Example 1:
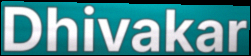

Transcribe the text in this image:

Dhivakar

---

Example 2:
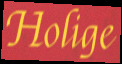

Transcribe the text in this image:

Holige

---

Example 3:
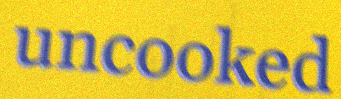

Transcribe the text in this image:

uncooked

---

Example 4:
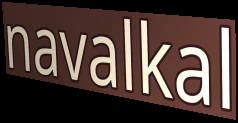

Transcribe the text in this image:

navalkal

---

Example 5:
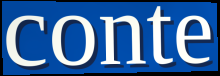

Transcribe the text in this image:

conte